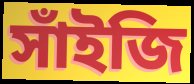
সাঁইজি